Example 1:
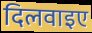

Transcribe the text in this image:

दिलवाइए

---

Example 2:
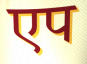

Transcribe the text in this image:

एप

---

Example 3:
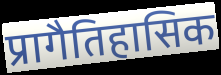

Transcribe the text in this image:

प्रागैतिहासिक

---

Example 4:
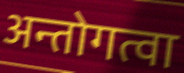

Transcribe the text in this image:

अन्तोगत्वा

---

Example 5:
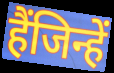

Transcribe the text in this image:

हैंजिन्हें